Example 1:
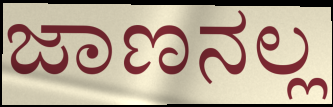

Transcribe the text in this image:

ಜಾಣನಲ್ಲ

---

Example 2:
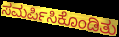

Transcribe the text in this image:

ಸಮರ್ಪಿಸಿಕೊಂಡಿತು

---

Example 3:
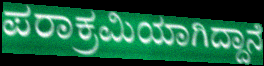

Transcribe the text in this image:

ಪರಾಕ್ರಮಿಯಾಗಿದ್ದಾನೆ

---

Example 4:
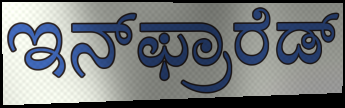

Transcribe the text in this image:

ಇನ್‌ಫ್ರಾರೆಡ್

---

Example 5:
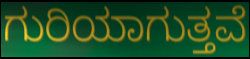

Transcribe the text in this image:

ಗುರಿಯಾಗುತ್ತವೆ